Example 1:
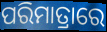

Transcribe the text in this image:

ପରିମାତ୍ରାରେ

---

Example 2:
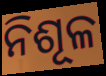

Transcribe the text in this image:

ନିଶୂଳ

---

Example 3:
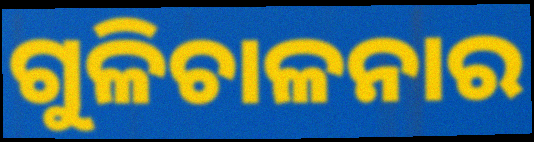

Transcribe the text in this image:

ଗୁଳିଚାଳନାର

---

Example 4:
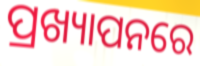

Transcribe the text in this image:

ପ୍ରଖ୍ୟାପନରେ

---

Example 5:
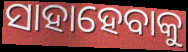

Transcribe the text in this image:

ସାହାହେବାକୁ